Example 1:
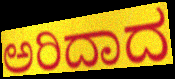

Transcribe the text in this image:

ಅರಿದಾದ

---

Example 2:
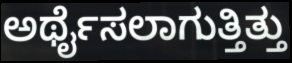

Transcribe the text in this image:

ಅರ್ಥೈಸಲಾಗುತ್ತಿತ್ತು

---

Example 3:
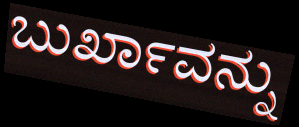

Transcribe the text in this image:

ಬುರ್ಖಾವನ್ನು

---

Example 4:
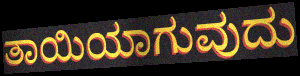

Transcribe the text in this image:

ತಾಯಿಯಾಗುವುದು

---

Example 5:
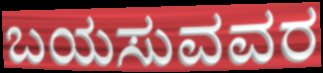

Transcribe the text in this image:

ಬಯಸುವವರ